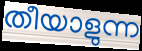
തീയാളുന്ന